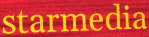
starmedia